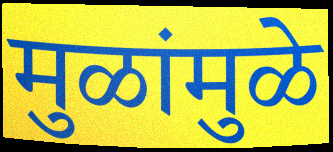
मुळांमुळे